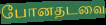
போனதடவை